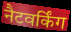
नैटवर्किंग